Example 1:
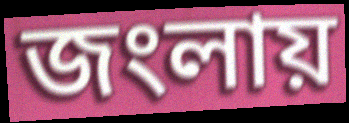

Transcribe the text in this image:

জংলায়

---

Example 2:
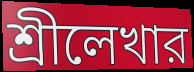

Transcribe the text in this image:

শ্রীলেখার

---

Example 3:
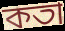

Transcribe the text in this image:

কতা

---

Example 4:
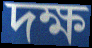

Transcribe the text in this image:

দক্ষ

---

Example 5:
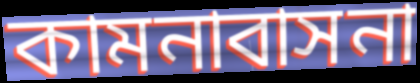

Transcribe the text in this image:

কামনাবাসনা